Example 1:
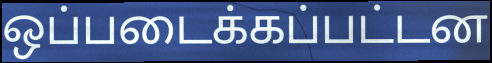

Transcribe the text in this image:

ஒப்படைக்கப்பட்டன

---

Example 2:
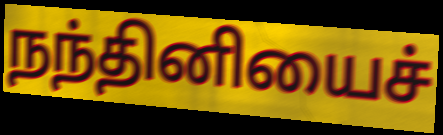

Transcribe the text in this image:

நந்தினியைச்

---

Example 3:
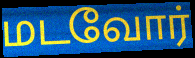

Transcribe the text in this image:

மடவோர்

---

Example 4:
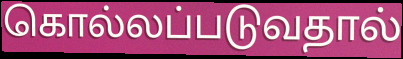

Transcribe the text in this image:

கொல்லப்படுவதால்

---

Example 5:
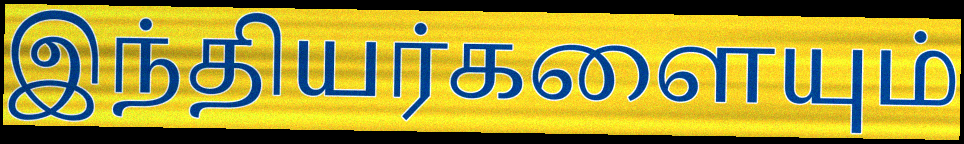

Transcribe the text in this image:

இந்தியர்களையும்